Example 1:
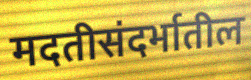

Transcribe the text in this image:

मदतीसंदर्भातील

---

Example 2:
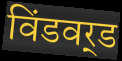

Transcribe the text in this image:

विंडवर्ड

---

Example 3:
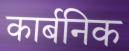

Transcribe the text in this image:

कार्बनिक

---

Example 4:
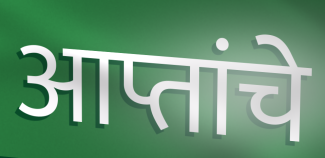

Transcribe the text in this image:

आप्तांचे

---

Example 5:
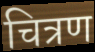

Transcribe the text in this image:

चित्रण